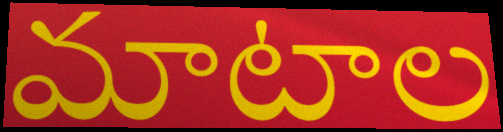
మాటాల